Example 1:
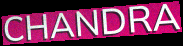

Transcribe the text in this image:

CHANDRA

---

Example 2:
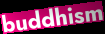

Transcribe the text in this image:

buddhism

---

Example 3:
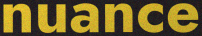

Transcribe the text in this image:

nuance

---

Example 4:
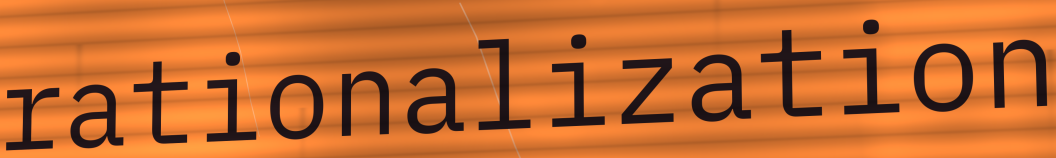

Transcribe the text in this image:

rationalization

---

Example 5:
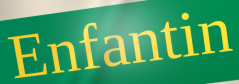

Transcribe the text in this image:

Enfantin